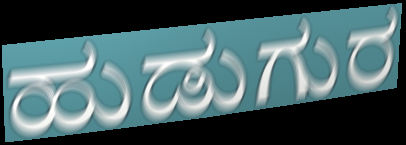
ಹುಡುಗುರ